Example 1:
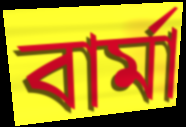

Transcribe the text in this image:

বার্মা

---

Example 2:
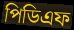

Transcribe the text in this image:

পিডিএফ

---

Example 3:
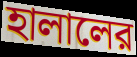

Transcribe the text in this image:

হালালের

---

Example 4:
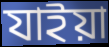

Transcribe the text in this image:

যাইয়া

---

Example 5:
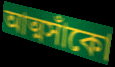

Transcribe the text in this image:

আত্মসাঁকো